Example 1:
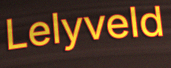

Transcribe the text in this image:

Lelyveld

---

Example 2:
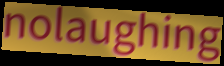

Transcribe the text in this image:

nolaughing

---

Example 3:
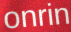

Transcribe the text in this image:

onrin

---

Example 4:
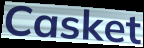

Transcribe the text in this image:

Casket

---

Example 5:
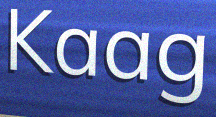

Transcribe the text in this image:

Kaag